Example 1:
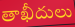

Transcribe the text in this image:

తాఖీదులు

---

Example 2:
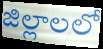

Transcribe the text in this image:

జిల్లాలలో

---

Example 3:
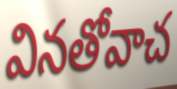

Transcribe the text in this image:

వినతోవాచ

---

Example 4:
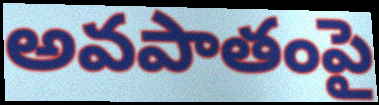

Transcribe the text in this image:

అవపాతంపై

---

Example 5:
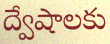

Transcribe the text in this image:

ద్వేషాలకు